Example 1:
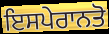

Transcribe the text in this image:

ਇਸਪੇਰਾਨਤੋ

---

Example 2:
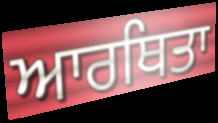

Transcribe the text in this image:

ਆਰਥਿਤਾ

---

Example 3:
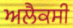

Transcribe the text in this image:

ਅਲੈਕਸੀ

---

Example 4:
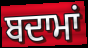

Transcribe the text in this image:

ਬਦਾਮਾਂ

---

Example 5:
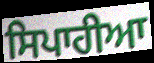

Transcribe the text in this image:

ਸਿਪਾਹੀਆ